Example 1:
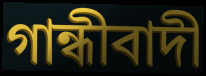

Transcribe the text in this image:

গান্ধীবাদী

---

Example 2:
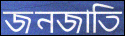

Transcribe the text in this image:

জনজাতি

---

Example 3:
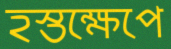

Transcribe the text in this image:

হস্তক্ষেপে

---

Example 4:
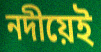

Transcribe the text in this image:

নদীয়েই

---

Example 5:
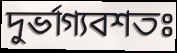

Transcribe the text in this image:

দুৰ্ভাগ্যবশতঃ